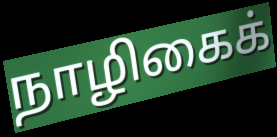
நாழிகைக்